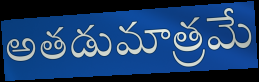
అతడుమాత్రమే